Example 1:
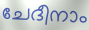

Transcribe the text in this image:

ചേദീനാം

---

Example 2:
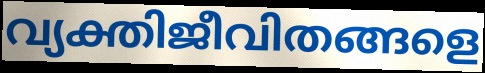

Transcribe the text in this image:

വ്യക്തിജീവിതങ്ങളെ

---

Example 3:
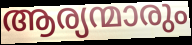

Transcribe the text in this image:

ആര്യന്മാരും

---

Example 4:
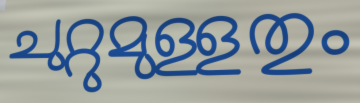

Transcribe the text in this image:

ചുറ്റുമുള്ളതും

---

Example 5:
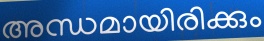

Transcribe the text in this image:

അന്ധമായിരിക്കും